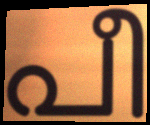
പീ